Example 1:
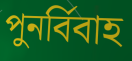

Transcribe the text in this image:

পুনৰ্বিবাহ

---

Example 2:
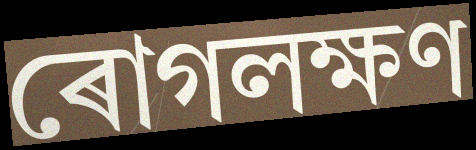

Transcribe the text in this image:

ৰোগলক্ষণ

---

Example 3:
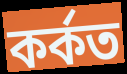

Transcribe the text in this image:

কৰ্কত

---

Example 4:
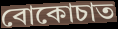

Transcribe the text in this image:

বোকোচাত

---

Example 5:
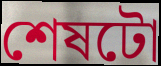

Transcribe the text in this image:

শেষটো